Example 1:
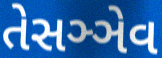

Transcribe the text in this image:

તેસઞ્ઞેવ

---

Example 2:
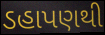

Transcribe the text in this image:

ડહાપણથી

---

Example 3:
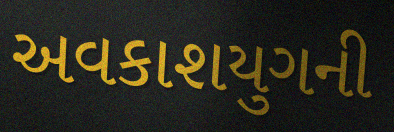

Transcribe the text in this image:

અવકાશયુગની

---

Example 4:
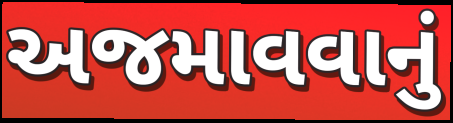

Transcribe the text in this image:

અજમાવવાનું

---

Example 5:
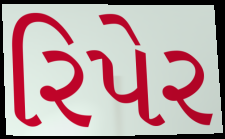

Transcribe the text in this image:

રિપેર